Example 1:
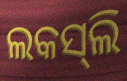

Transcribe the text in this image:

ଲକସ୍‍ଲି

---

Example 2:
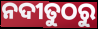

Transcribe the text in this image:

ନଦୀତୁଠରୁ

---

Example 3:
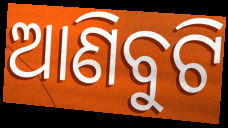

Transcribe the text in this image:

ଆଣିବୁଟି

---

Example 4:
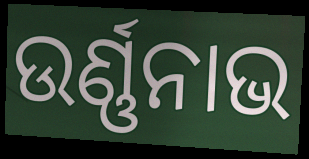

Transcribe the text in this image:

ଉର୍ଣ୍ଣନାଭ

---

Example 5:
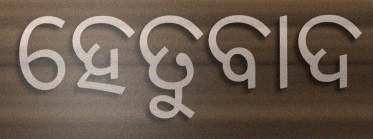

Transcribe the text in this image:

ହେତୁବାଦ